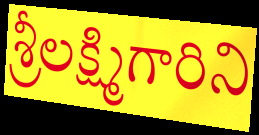
శ్రీలక్ష్మిగారిని